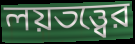
লয়তত্ত্বের